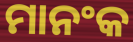
ମାନଂକ